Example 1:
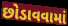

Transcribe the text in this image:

છોડાવવામાં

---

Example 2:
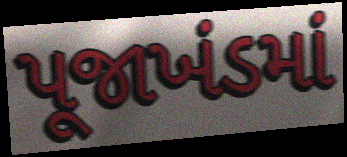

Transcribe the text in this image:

પૂજાખંડમાં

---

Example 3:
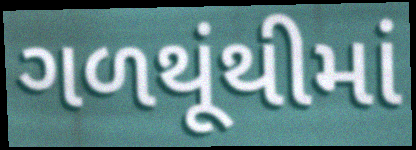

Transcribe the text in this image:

ગળથૂંથીમાં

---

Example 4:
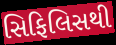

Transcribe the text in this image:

સિફિલિસથી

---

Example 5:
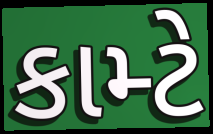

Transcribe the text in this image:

કામ્ટે